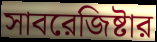
সাবরেজিষ্টার